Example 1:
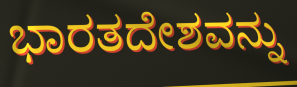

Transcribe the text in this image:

ಭಾರತದೇಶವನ್ನು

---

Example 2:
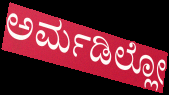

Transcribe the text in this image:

ಅರ್ಮಡಿಲ್ಲೋ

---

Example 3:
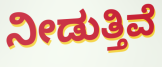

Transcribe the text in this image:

ನೀಡುತ್ತಿವೆ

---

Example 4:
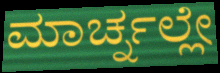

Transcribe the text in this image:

ಮಾರ್ಚ್ನಲ್ಲೇ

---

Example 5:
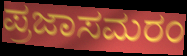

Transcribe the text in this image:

ಪ್ರಜಾಸಮರಂ